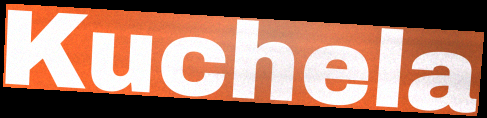
Kuchela